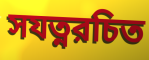
সযত্নরচিত